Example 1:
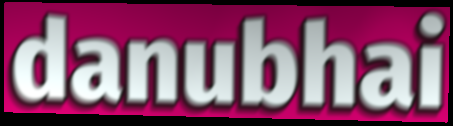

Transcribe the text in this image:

danubhai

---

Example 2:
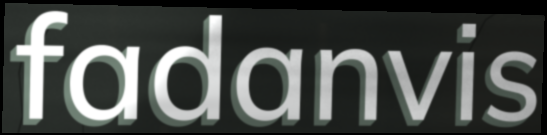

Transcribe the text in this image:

fadanvis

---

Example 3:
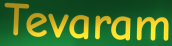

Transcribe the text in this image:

Tevaram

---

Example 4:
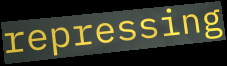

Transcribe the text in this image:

repressing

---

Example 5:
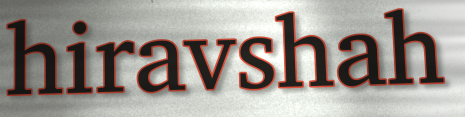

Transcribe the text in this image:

hiravshah